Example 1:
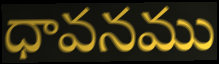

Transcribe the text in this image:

ధావనము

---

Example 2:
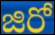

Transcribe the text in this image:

జిరో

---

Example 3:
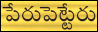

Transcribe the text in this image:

పేరుపెట్టేరు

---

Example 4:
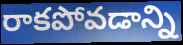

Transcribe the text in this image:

రాకపోవడాన్ని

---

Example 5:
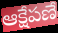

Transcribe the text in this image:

ఆక్షేపణే